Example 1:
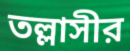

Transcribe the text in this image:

তল্লাসীর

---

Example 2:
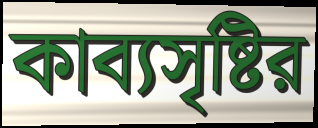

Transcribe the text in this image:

কাব্যসৃষ্টির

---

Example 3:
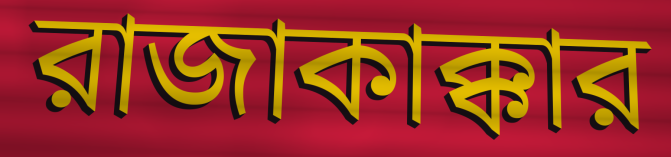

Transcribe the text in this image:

রাজাকাক্কার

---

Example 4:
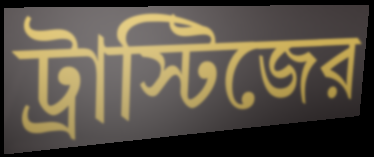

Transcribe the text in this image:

ট্রাস্টিজের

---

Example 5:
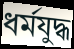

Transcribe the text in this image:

ধর্মযুদ্ধ